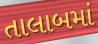
તાલાબમાં